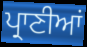
ਪ੍ਰਾਣੀਆਂ